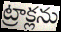
ట్రాక్లను